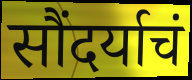
सौंदर्याचं